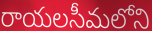
రాయలసీమలోని